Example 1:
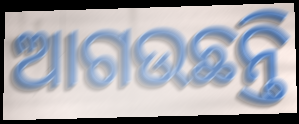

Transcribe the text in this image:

ଆଗଉଛନ୍ତି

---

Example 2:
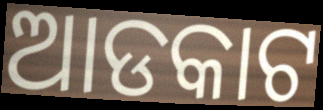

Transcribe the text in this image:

ଆଡକାଟ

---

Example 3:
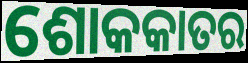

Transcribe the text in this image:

ଶୋକକାତର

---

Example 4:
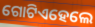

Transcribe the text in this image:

ଗୋଟିଏହେଲେ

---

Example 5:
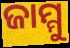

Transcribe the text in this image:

ଜାମ୍ମୁ